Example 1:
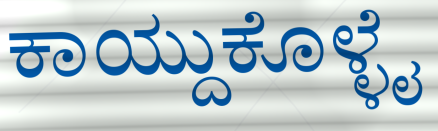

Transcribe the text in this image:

ಕಾಯ್ದುಕೊಳ್ಳೈ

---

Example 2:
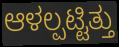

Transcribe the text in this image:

ಆಳಲ್ಪಟ್ಟಿತ್ತು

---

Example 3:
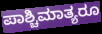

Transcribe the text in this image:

ಪಾಶ್ಚಿಮಾತ್ಯರೂ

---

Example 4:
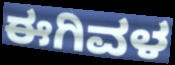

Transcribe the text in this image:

ಈಗಿವಳ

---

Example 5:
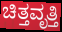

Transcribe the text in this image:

ಚಿತ್ತವೃತ್ತಿ